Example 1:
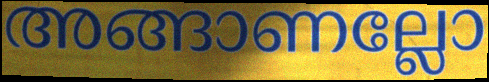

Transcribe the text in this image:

അങ്ങാണല്ലോ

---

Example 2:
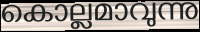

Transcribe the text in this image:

കൊല്ലമാവുന്നു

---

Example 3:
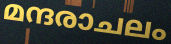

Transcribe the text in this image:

മന്ദരാചലം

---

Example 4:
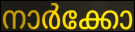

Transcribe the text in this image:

നാർക്കോ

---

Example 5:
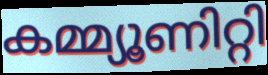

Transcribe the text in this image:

കമ്മ്യൂണിറ്റി